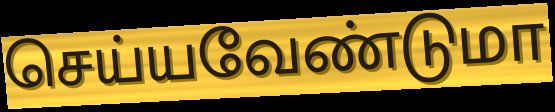
செய்யவேண்டுமா